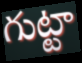
గుట్టా